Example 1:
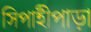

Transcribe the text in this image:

সিপাহীপাড়া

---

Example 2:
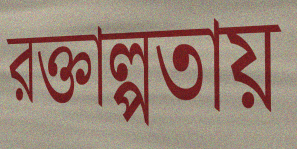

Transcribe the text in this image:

রক্তাল্পতায়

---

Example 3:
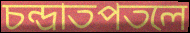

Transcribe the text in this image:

চন্দ্রাতপতলে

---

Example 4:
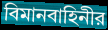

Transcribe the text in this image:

বিমানবাহিনীর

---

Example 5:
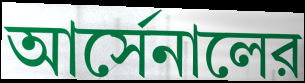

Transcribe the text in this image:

আর্সেনালের